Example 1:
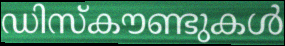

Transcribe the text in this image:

ഡിസ്കൗണ്ടുകൾ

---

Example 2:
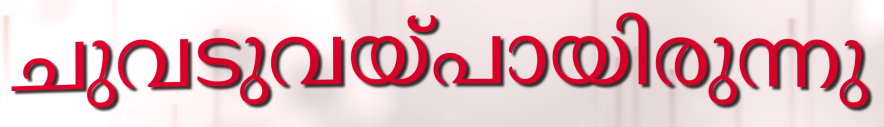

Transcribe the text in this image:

ചുവടുവയ്പായിരുന്നു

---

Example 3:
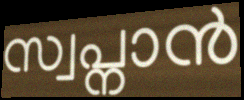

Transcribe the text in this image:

സ്വപ്നാൻ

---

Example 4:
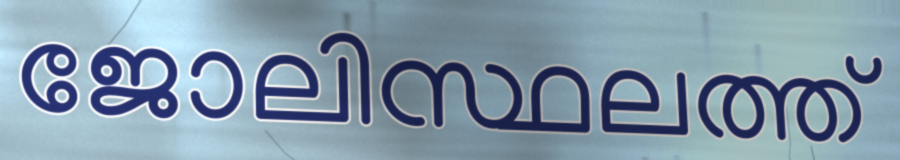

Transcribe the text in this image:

ജോലിസ്ഥലത്ത്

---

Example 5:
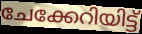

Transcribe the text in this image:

ചേക്കേറിയിട്ട്